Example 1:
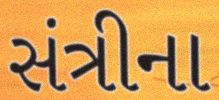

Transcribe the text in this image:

સંત્રીના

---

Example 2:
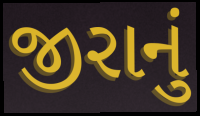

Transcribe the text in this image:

જીરાનું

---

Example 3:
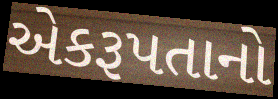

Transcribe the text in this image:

એકરૂપતાનો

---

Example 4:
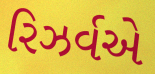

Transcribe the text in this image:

રિઝર્વએ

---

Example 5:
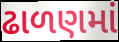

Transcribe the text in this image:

ઢાળણમાં